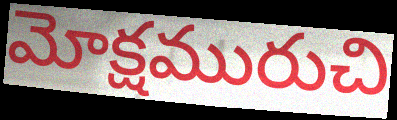
మోక్షమురుచి